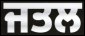
ਜਤਲ